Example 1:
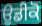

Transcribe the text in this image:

ਉਡੀਕੋ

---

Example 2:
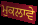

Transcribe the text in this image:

ਮੁਕਲਾਵੇ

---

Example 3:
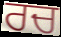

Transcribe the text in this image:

ਰਚ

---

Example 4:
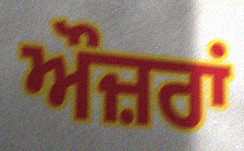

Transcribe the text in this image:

ਔਜ਼ਰਾਂ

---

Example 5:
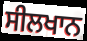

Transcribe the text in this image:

ਸੀਲਖਾਨ